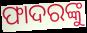
ଫାଦରଙ୍କୁ